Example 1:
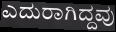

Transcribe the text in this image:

ಎದುರಾಗಿದ್ದವು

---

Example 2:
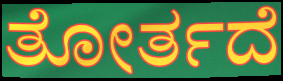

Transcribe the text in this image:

ತೋರ್ತದೆ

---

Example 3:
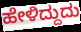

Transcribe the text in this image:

ಹೇಳಿದ್ದುದು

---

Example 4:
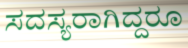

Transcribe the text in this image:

ಸದಸ್ಯರಾಗಿದ್ದರೂ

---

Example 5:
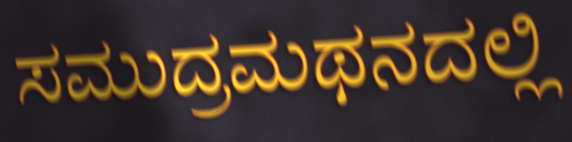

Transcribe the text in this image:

ಸಮುದ್ರಮಥನದಲ್ಲಿ